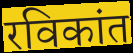
रविकांत